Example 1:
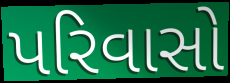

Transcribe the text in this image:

પરિવાસો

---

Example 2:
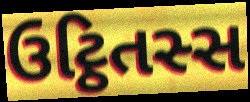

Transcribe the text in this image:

ઉટ્ઠિતસ્સ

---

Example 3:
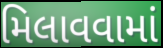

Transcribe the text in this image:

મિલાવવામાં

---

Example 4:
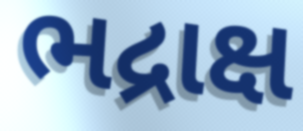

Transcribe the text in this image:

ભદ્રાક્ષ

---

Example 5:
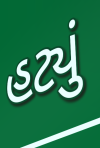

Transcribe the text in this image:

હટ્યું